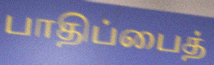
பாதிப்பைத்